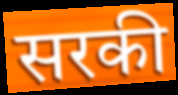
सरकी